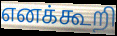
எனக்கூறி